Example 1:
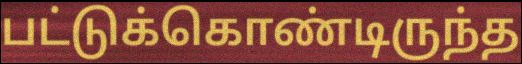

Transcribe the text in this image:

பட்டுக்கொண்டிருந்த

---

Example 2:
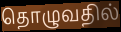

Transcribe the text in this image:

தொழுவதில்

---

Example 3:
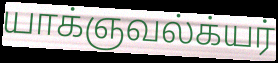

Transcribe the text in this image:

யாக்ஞவல்க்யர்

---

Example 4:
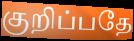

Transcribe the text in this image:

குறிப்பதே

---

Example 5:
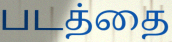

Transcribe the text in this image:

படத்தை